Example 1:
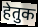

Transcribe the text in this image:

हेतुक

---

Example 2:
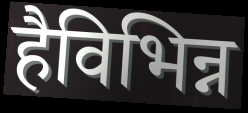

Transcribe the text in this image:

हैविभिन्न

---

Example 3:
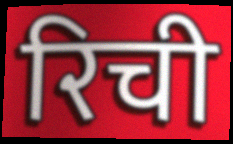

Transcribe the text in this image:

रिची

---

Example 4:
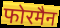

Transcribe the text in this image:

फोरमैन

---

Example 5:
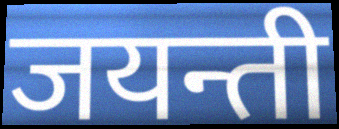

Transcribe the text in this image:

जयन्ती